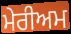
ਮੇਰੀਅਮ